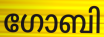
ഗോബി